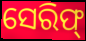
ସେରିଫ୍